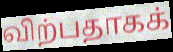
விற்பதாகக்